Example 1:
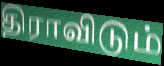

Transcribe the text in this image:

திராவிடும்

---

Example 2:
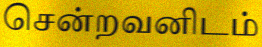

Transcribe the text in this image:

சென்றவனிடம்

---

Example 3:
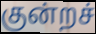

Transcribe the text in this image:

குன்றச்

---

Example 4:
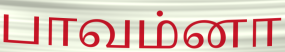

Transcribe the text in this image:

பாவம்னா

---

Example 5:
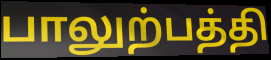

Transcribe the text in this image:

பாலுற்பத்தி